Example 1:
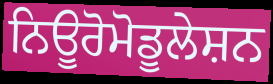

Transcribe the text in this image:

ਨਿਊਰੋਮੋਡੂਲੇਸ਼ਨ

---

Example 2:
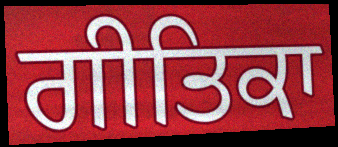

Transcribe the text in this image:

ਗੀਤਿਕਾ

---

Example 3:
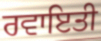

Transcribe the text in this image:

ਰਵਾਇਤੀ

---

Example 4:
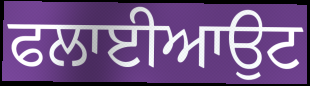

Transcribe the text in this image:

ਫਲਾਈਆਉਟ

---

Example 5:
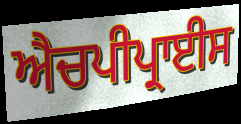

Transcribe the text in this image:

ਐਚਪੀਪ੍ਰਾਈਸ